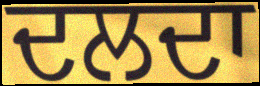
ਦਲਦਾ